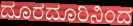
ದೂರದೂರಿನಿಂದ